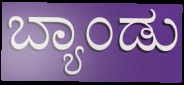
ಬ್ಯಾಂಡು